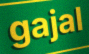
gajal